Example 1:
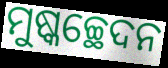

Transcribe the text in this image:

ମୁଷ୍କଚ୍ଛେଦନ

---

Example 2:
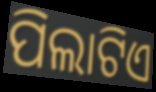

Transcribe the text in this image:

ପିଲାଟିଏ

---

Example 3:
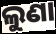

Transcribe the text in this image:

ଲୁଣା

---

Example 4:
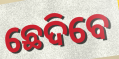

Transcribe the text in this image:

ଛେଦିବେ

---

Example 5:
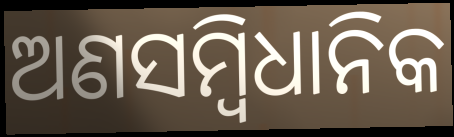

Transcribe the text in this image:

ଅଣସମ୍ବିଧାନିକ